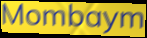
Mombaym